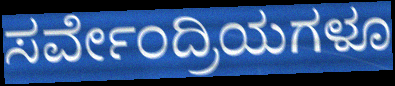
ಸರ್ವೇಂದ್ರಿಯಗಳೂ